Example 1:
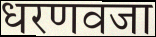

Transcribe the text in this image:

धरणवजा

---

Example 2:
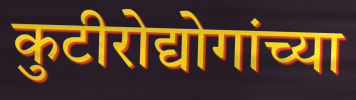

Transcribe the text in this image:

कुटीरोद्योगांच्या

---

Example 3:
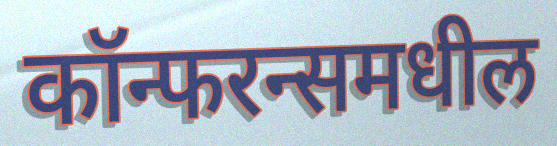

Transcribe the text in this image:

कॉन्फरन्समधील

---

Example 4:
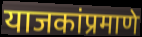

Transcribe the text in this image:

याजकांप्रमाणे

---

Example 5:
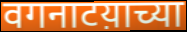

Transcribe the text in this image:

वगनाटय़ाच्या